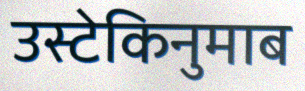
उस्टेकिनुमाब